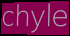
chyle